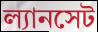
ল্যানসেট